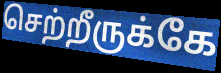
செற்றீருக்கே